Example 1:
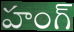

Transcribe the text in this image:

హంగ్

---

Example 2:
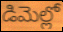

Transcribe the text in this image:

డిమెల్లో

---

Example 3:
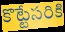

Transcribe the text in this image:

కొట్టేసరికి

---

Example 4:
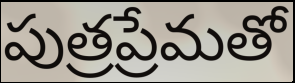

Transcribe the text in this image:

పుత్రప్రేమతో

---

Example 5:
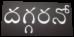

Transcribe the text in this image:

దగ్గరనో